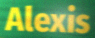
Alexis